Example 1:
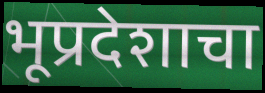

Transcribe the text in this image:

भूप्रदेशाचा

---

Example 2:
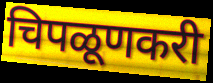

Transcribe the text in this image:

चिपळूणकरी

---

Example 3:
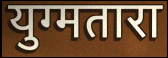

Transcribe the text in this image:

युग्मतारा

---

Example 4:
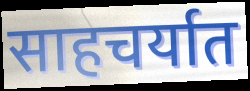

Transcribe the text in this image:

साहचर्यात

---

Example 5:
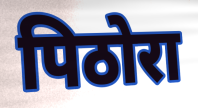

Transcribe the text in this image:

पिठोरा